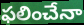
ఫలించేనా